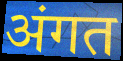
अंगत